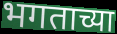
भगताच्या